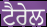
ਟੈਰੇਲ